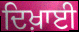
ਦਿਖ਼ਾਈ